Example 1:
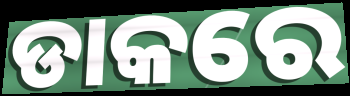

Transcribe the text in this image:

ଡାକରେ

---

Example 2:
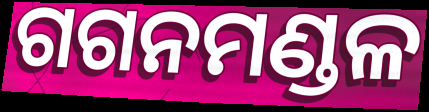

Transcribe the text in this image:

ଗଗନମଣ୍ଡଳ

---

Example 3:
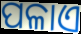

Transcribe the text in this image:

ପଳାଏ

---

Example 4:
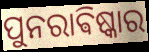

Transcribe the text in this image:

ପୁନରାଵିଷ୍କାର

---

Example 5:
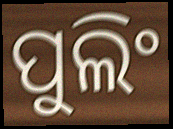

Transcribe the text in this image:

ପୁଲିଂ